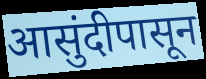
आसुंदीपासून